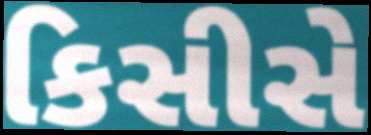
કિસીસે